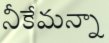
నీకేమన్నా